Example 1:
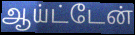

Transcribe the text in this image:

ஆய்ட்டேன்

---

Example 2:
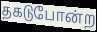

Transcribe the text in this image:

தகடுபோன்ற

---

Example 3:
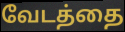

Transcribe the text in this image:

வேடத்தை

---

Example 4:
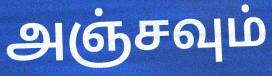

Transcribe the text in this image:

அஞ்சவும்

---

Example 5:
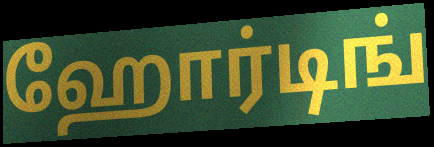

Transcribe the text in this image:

ஹோர்டிங்